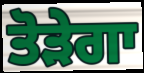
ਤੋੜੇਗਾ